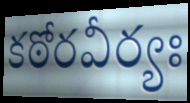
కఠోరవీర్యః